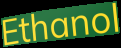
Ethanol